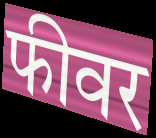
फीवर